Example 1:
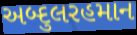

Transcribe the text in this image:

અબ્દુલરહમાન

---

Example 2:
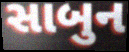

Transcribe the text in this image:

સાબુન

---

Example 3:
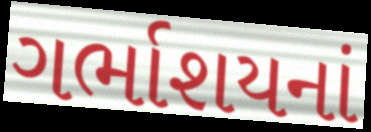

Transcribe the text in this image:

ગર્ભાશયનાં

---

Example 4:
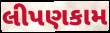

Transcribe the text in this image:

લીપણકામ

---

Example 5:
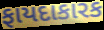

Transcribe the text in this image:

ફાયદાકારક